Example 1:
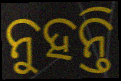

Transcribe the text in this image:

ନୁହନ୍ତି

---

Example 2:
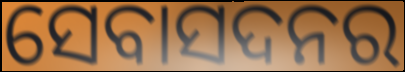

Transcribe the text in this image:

ସେବାସଦନର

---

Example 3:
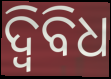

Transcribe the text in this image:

ଦ୍ଵିବିଧ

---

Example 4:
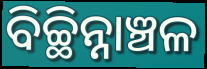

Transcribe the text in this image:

ବିଚ୍ଛିନ୍ନାଞ୍ଚଳ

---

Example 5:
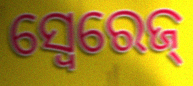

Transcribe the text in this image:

ସ୍ୱେରେଜ୍